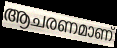
ആചരണമാണ്